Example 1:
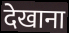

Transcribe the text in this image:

देखाना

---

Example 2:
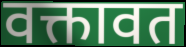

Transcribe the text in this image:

वक्तावत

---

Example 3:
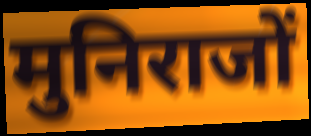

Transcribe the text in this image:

मुनिराजों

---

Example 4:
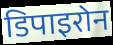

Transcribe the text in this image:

डिपाइरोन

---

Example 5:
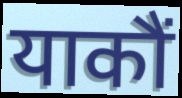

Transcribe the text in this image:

याकौं